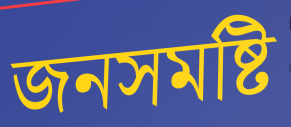
জনসমষ্টি